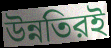
উন্নতিরই